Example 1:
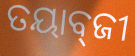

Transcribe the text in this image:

ତୟାବ୍‌ଜୀ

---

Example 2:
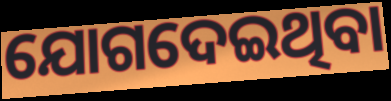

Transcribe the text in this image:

ଯୋଗଦେଇଥିବା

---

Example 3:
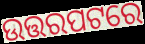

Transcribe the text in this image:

ଉତ୍ତରପଟରେ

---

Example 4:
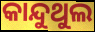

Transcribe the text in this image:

କାନ୍ଦୁଥୁଲ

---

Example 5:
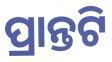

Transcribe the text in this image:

ପ୍ରାନ୍ତଟି